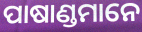
ପାଷାଣ୍ଡମାନେ